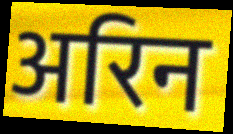
अरिन